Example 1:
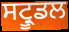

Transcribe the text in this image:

ਸਟ੍ਰੂਡਲ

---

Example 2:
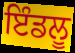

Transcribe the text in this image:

ਇੰਡਲੂ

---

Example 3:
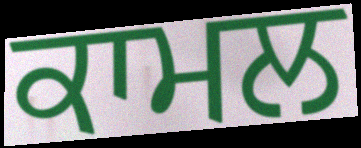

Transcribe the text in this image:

ਕਾਮਲ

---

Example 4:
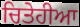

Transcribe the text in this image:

ਚਿਤੇਹੀਆ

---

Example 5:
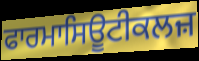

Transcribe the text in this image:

ਫਾਰਮਾਸਿਊਟੀਕਲਜ਼